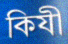
কিযী